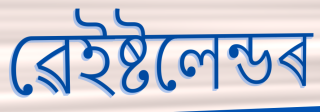
ৱেইষ্টলেন্ডৰ